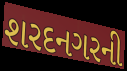
શરદનગરની